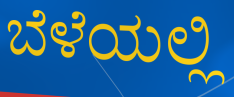
ಬೆಳೆಯಲ್ಲಿ